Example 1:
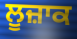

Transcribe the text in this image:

ਲੂਜ਼ਾਕ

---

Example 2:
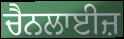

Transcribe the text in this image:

ਚੈਨਲਾਈਜ਼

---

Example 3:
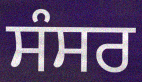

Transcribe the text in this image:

ਸੰਸਰ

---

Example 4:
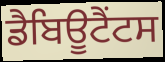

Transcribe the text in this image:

ਡੈਬਿਊਟੈਂਟਸ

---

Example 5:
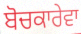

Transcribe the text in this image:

ਬੋਚਕਾਰੇਵਾ